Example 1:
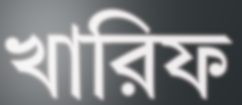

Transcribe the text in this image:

খারিফ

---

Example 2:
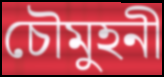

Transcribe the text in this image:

চৌমুহনী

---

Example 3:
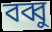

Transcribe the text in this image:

বব্বু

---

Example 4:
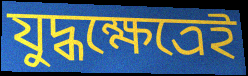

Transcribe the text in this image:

যুদ্ধক্ষেত্রেই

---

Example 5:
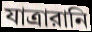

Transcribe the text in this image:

যাত্রারানি